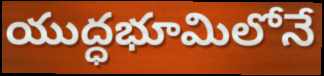
యుద్ధభూమిలోనే